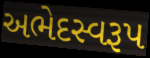
અભેદસ્વરૂપ